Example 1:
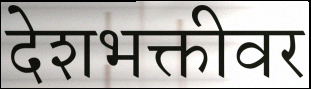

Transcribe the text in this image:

देशभक्तीवर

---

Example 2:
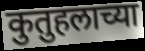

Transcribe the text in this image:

कुतुहलाच्या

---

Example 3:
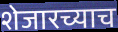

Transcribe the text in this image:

शेजारच्याच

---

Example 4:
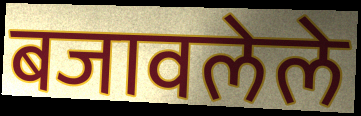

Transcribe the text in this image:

बजावलेले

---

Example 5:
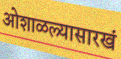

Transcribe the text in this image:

ओशाळल्यासारखं